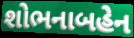
શોભનાબહેન